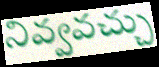
నివ్వవచ్చు